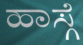
ಹಾಸ್ಗೆ